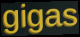
gigas